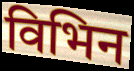
विभिन